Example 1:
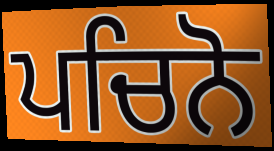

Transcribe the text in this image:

ਪਚਿਨੋ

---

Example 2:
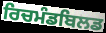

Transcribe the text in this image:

ਰਿਚਮੰਡਬਿਲਡ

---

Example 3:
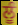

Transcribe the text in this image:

ਲੂੰ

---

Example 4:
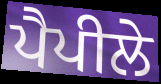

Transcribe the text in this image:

ਪੈਪੀਲੇ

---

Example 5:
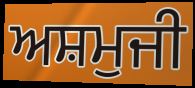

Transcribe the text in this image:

ਅਸ਼ਮੁਜੀ